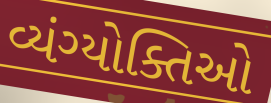
વ્યંગ્યોક્તિઓ